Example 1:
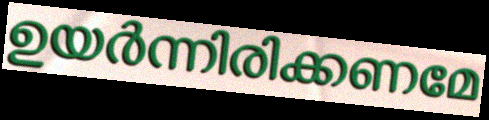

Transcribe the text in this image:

ഉയർന്നിരിക്കണമേ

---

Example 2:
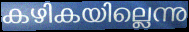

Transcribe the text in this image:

കഴികയില്ലെന്നു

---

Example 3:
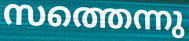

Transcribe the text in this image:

സത്തെന്നു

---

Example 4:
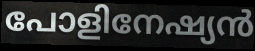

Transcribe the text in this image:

പോളിനേഷ്യൻ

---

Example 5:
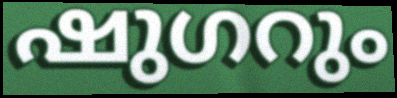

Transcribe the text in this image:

ഷുഗറും